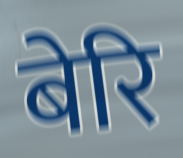
बेरि